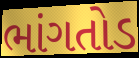
ભાંગતોડ